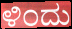
ಳಿಂದು